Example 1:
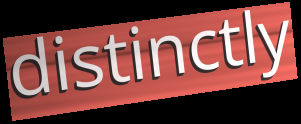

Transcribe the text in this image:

distinctly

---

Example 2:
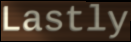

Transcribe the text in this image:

Lastly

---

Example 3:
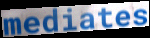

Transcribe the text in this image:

mediates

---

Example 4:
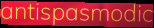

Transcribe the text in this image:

antispasmodic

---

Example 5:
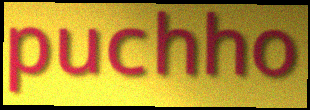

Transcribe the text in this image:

puchho